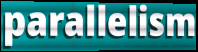
parallelism